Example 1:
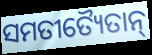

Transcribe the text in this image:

ସମତୀତ୍ୟୈତାନ୍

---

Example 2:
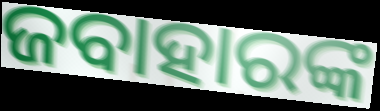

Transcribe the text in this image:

ଜବାହାରଙ୍କ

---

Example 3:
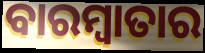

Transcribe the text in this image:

ବାରମ୍ବାତାର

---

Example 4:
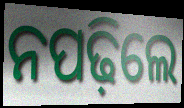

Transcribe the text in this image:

ନପଢ଼ିଲେ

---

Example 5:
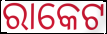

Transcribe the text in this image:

ରାକେଟ